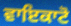
ਵਾਇਕਾਟੋ